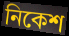
নিকেশ